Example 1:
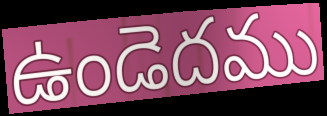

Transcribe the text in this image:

ఉండెదము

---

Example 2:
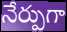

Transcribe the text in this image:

నేర్పుగా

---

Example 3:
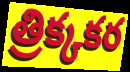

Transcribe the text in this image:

త్రిక్కకర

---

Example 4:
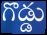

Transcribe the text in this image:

గొడ్డు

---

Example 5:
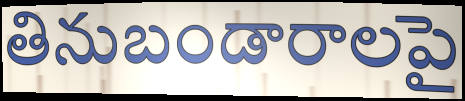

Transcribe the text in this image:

తినుబండారాలపై